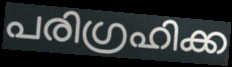
പരിഗ്രഹിക്ക